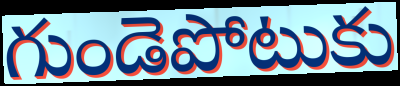
గుండెపోటుకు